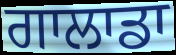
ਗਾਲਾਡਾ